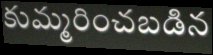
కుమ్మరించబడిన